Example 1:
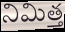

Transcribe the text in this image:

నిమిత్త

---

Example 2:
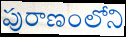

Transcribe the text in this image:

పురాణంలోని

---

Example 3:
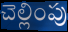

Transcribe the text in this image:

చెల్లింపు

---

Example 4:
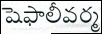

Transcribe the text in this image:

షెఫాలీవర్మ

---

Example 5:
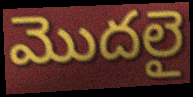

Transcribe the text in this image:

మొదలై